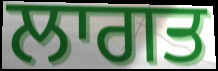
ਲਾਗਤ